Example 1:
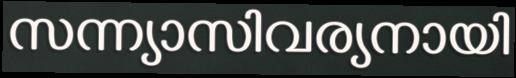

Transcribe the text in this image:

സന്ന്യാസിവര്യനായി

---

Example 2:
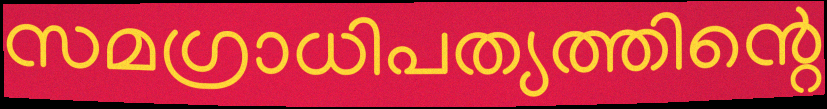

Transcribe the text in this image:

സമഗ്രാധിപത്യത്തിന്റെ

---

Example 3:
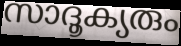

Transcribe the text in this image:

സാദൂക്യരും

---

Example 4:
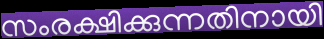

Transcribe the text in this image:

സംരക്ഷിക്കുന്നതിനായി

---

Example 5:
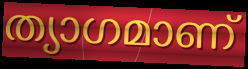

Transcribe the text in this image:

ത്യാഗമാണ്